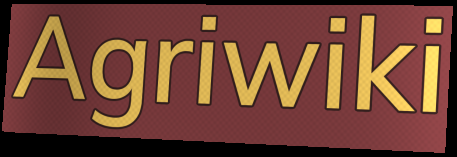
Agriwiki